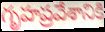
గృహప్రవేశానికి